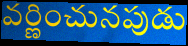
వర్ణించునపుడు